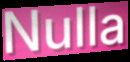
Nulla